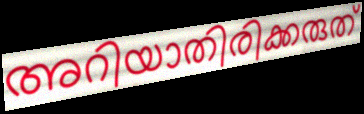
അറിയാതിരിക്കരുത്